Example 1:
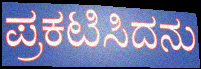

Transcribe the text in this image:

ಪ್ರಕಟಿಸಿದನು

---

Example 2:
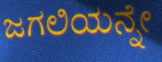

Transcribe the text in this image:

ಜಗಲಿಯನ್ನೇ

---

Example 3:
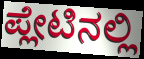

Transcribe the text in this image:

ಪ್ಲೇಟಿನಲ್ಲಿ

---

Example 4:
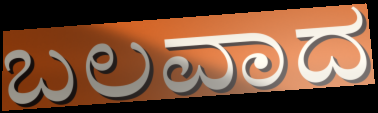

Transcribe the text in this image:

ಬಲವಾದ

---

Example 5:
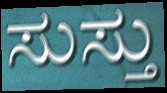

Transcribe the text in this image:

ಸುಸ್ತು